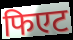
फिएट